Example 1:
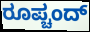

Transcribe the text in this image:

ರೂಪ್ಚಂದ್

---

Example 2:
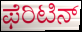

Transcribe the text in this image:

ಫೆರಿಟಿನ್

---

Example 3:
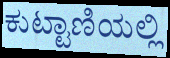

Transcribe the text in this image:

ಕುಟ್ಟಾಣಿಯಲ್ಲಿ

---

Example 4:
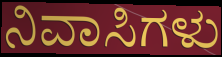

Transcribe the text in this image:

ನಿವಾಸಿಗಳು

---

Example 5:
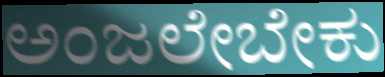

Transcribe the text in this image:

ಅಂಜಲೇಬೇಕು